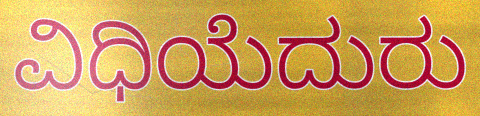
ವಿಧಿಯೆದುರು